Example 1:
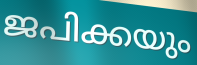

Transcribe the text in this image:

ജപിക്കയും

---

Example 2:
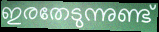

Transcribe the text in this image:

ഇരതേടുന്നുണ്ട്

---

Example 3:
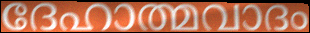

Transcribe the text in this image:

ദേഹാത്മവാദം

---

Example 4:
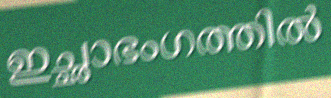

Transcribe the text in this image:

ഇച്ഛാഭംഗത്തിൽ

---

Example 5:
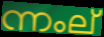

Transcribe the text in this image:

ന്നംല്